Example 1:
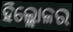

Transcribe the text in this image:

ହିଲ୍ଲୋଳର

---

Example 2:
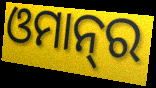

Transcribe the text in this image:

ଓମାନ୍‌ର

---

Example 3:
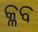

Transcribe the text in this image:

କ୍ଳବ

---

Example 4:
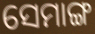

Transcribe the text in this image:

ସେମାଙ୍ଗ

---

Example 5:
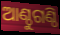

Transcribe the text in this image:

ଆଣ୍ଠୁଗଣ୍ଠି